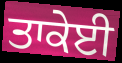
ਤਾਕੇਈ